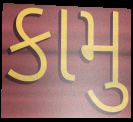
કામુ